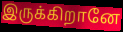
இருக்கிறானே